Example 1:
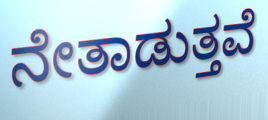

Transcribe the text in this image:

ನೇತಾಡುತ್ತವೆ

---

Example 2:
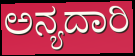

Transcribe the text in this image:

ಅನ್ಯದಾರಿ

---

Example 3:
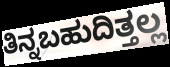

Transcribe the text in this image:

ತಿನ್ನಬಹುದಿತ್ತಲ್ಲ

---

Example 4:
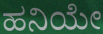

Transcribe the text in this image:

ಹನಿಯೇ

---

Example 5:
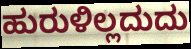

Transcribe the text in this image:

ಹುರುಳಿಲ್ಲದುದು